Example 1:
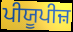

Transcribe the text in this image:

ਪੀਯੂਪੀਜ਼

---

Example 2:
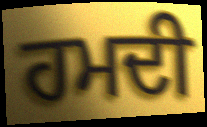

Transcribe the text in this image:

ਹਮਦੀ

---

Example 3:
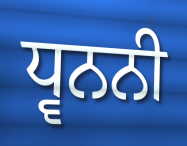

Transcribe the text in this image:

ਧ੍ਵਨਨੀ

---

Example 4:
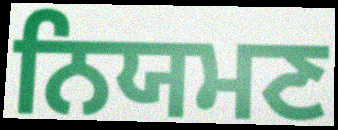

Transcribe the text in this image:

ਨਿਯਮਣ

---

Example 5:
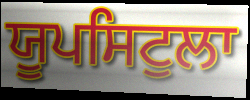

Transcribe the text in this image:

ਯੂਪਸਿਟੁਲਾ